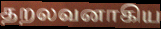
தறலவனாகிய